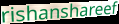
rishanshareef